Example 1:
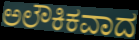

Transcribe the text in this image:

ಅಲೌಕಿಕವಾದ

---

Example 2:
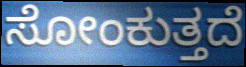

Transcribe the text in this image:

ಸೋಂಕುತ್ತದೆ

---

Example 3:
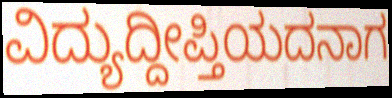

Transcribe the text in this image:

ವಿದ್ಯುದ್ದೀಪ್ತಿಯದನಾಗ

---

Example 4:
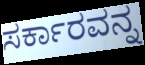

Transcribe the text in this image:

ಸರ್ಕಾರವನ್ನ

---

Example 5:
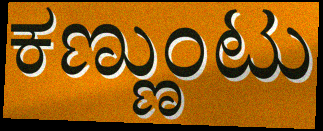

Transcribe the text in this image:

ಕಣ್ಣುಂಟು